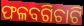
ଫଳବଗିଚାଟି